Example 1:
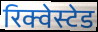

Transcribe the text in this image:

रिक्वेस्टेड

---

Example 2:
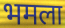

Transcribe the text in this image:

भमला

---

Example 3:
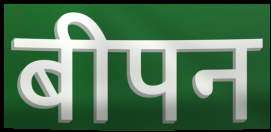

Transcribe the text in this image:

बीपन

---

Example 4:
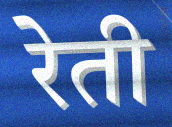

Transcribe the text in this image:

रेती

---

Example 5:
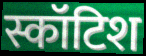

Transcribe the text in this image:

स्कॉटिश